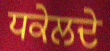
ਧਕੇਲਦੇ